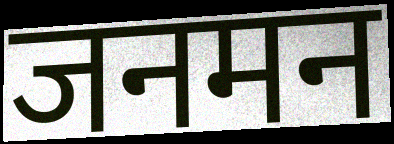
जनमन